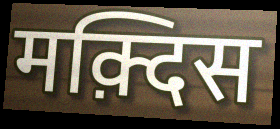
मक़्दिस